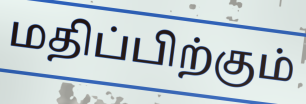
மதிப்பிற்கும்